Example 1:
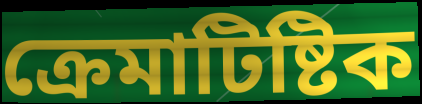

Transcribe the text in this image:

ক্রেমাটিষ্টিক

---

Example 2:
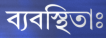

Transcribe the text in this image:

ব্যবস্থিতাঃ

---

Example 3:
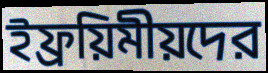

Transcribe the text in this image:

ইফ্রয়িমীয়দের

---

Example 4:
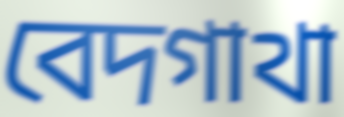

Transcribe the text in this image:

বেদগাথা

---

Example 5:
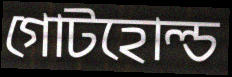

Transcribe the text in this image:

গোটহোল্ড